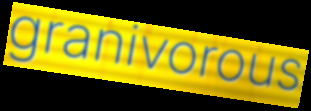
granivorous